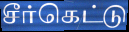
சீர்கெட்டு